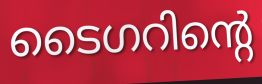
ടൈഗറിന്റെ